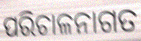
ପରିଚାଳନାଗତ